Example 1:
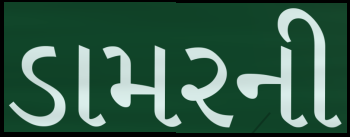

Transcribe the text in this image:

ડામરની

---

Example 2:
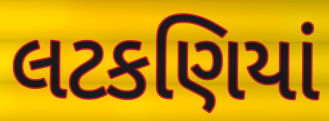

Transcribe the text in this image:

લટકણિયાં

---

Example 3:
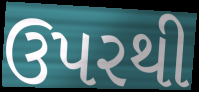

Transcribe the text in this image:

ઉપરથી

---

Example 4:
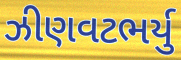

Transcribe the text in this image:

ઝીણવટભર્યુ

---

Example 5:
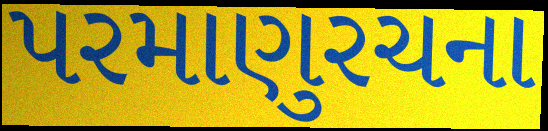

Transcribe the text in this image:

પરમાણુરચના